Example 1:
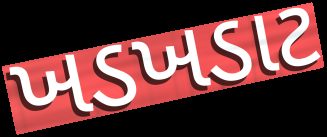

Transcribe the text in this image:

ખડખડાટ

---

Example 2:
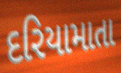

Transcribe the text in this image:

દરિયામાતા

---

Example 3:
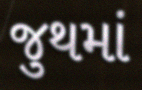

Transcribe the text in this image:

જુથમાં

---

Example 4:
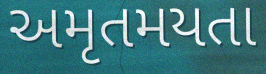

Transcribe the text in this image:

અમૃતમયતા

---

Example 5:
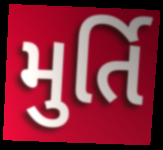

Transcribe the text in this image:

મુર્તિ